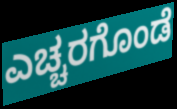
ಎಚ್ಚರಗೊಂಡೆ